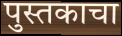
पुस्तकाचा